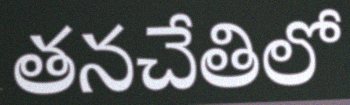
తనచేతిలో